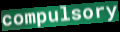
compulsory